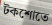
টকশোতে